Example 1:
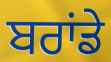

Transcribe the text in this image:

ਬਰਾਂਡੇ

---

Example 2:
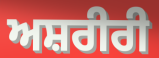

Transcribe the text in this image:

ਅਸ਼ਰੀਰੀ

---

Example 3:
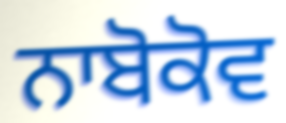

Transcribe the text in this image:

ਨਾਬੋਕੋਵ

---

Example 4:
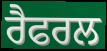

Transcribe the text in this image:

ਰੈਫਰਲ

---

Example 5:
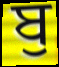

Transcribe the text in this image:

ਬੁ